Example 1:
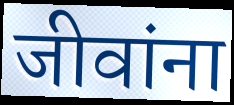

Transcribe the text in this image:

जीवांना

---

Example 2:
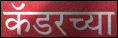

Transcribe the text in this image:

कॅडरच्या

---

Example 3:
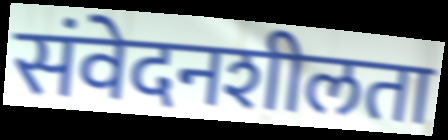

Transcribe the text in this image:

संवेदनशीलता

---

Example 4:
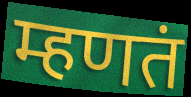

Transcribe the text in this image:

म्हणतं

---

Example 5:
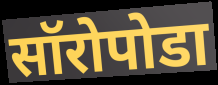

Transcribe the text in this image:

सॉरोपोडा